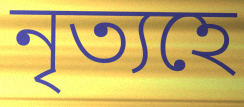
নৃত্যহে